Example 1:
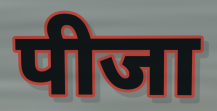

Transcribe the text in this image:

पीजा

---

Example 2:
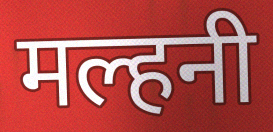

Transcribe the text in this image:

मल्हनी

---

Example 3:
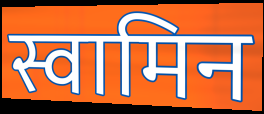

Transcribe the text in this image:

स्वामिन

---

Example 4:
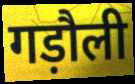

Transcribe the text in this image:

गड़ौली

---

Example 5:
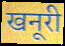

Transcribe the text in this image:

खनूरी